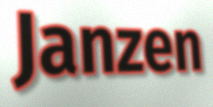
Janzen